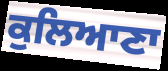
ਕੁਲਿਆਣਾ